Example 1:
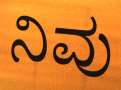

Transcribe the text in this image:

ನಿವು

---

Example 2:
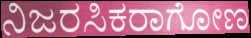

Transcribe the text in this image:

ನಿಜರಸಿಕರಾಗೋಣ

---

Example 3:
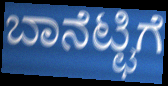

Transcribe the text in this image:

ಬಾನೆಟ್ಟಿಗೆ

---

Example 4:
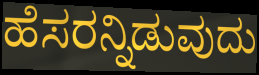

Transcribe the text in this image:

ಹೆಸರನ್ನಿಡುವುದು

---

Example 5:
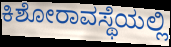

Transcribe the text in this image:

ಕಿಶೋರಾವಸ್ಥೆಯಲ್ಲಿ